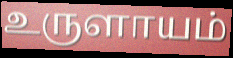
உருளாயம்